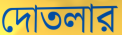
দোতলার